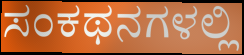
ಸಂಕಥನಗಳಲ್ಲಿ